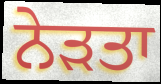
ਨੇੜਤਾ